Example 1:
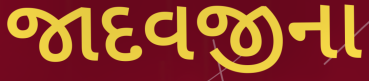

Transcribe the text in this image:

જાદવજીના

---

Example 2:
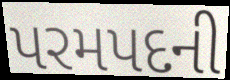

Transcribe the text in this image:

પરમપદની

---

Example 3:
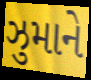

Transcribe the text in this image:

ઝુમાને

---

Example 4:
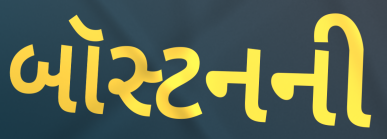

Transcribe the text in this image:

બૉસ્ટનની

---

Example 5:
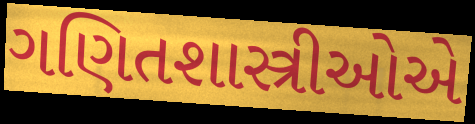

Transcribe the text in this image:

ગણિતશાસ્ત્રીઓએ